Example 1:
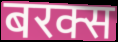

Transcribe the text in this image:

बरक्स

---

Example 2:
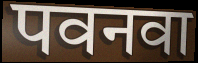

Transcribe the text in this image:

पवनवा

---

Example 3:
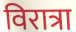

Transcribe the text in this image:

विरात्रा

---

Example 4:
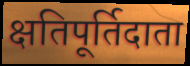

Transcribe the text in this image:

क्षतिपूर्तिदाता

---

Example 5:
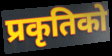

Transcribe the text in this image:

प्रकृतिको